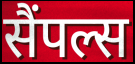
सैंपल्स